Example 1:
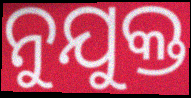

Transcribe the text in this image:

ନୁଯୁକ୍ତ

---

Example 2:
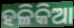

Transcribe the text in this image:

ହଳିକିଆ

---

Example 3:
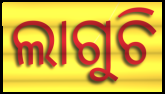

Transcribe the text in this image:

ଲାଗୁଚି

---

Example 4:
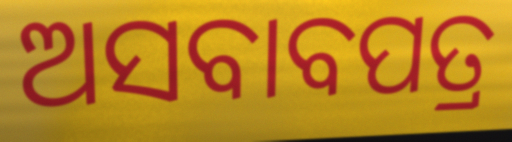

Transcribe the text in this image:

ଅସବାବପତ୍ର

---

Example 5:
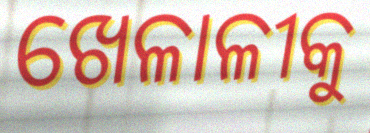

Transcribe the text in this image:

ଖେଳାଳୀକୁ